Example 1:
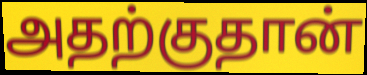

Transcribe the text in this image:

அதற்குதான்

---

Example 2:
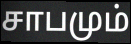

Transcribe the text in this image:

சாபமும்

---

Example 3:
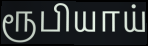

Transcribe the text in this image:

ரூபியாய்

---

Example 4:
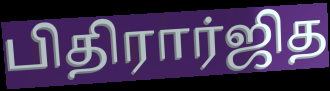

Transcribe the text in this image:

பிதிரார்ஜித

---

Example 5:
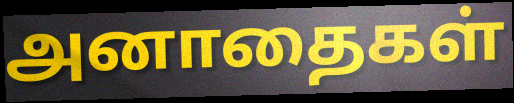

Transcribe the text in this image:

அனாதைகள்